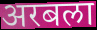
अरबला